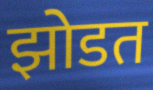
झोडत